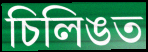
চিলিঙত